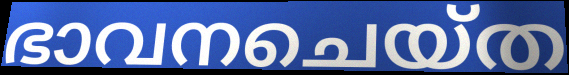
ഭാവനചെയ്ത